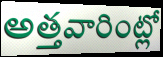
అత్తవారింట్లో